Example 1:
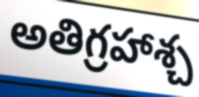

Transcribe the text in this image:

అతిగ్రహాశ్చ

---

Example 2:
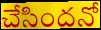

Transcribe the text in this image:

చేసిందనో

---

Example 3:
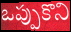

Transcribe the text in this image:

ఒప్పుకొని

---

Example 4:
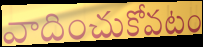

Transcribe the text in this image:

వాదించుకోవటం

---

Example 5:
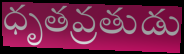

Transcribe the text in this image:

ధృతవ్రతుడు